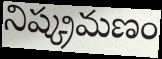
నిష్క్రమణం